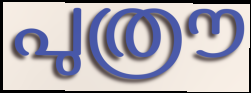
പുത്രൗ